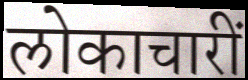
लोकाचारीं